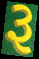
રૂ